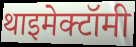
थाइमेक्टॉमी